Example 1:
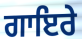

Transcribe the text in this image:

ਗਾਇਰੇ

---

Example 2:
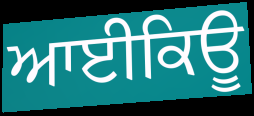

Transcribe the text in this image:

ਆਈਕਿਊ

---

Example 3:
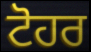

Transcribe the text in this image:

ਟੋਹਰ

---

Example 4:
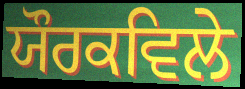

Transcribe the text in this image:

ਯੌਰਕਵਿਲੇ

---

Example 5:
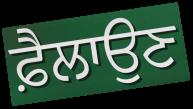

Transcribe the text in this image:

ਫ਼ੈਲਾਉਣ